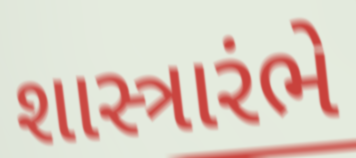
શાસ્ત્રારંભે